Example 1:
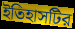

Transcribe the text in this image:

ইতিহাসটির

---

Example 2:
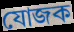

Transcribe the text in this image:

যোজক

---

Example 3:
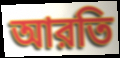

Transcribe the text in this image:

আরতি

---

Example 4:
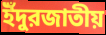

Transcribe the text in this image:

ইঁদুরজাতীয়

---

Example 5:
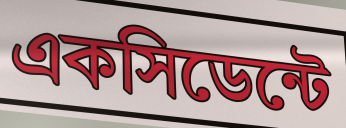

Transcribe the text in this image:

একসিডেন্টে